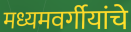
मध्यमवर्गीयांचे